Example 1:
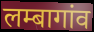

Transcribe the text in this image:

लम्बागांव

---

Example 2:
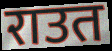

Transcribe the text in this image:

राउत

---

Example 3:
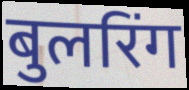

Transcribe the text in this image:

बुलरिंग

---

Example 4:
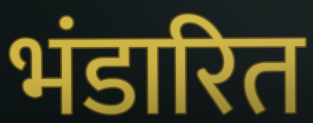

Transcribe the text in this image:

भंडारित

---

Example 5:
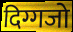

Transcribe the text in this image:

दिग्गजो